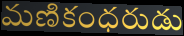
మణికంధరుడు